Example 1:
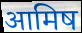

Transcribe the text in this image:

आमिष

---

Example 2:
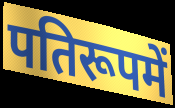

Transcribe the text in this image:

पतिरूपमें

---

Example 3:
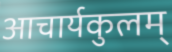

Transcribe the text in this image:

आचार्यकुलम्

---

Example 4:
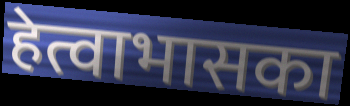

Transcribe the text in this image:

हेत्वाभासका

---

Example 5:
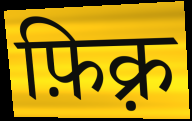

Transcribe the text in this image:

फ़िक़्र